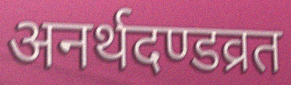
अनर्थदण्डव्रत